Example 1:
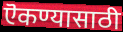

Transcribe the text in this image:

ऎकण्यासाठी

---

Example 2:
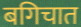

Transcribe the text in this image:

बगिचात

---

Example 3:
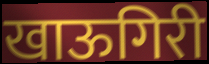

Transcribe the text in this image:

खाऊगिरी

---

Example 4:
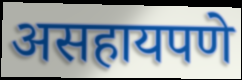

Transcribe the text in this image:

असहायपणे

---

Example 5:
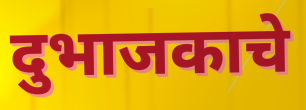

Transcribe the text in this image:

दुभाजकाचे